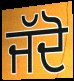
ਜੱਦੋ